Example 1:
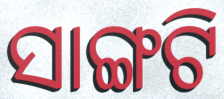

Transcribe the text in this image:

ସାଙ୍ଗଟି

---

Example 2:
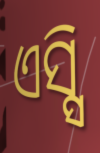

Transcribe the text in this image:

ଏସ୍ସି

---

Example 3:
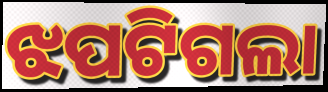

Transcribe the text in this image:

ଝପଟିଗଲା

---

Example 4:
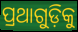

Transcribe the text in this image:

ପ୍ରଥାଗୁଡ଼ିକୁ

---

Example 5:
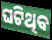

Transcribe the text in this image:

ଘଟିଥିବ